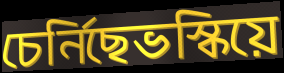
চেৰ্নিছেভস্কিয়ে